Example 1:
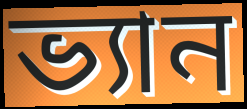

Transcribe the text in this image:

ভ্যান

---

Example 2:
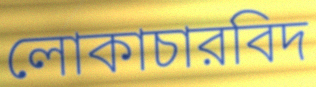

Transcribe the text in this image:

লোকাচারবিদ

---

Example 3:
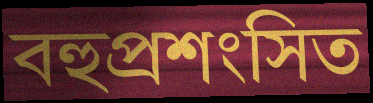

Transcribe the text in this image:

বহুপ্রশংসিত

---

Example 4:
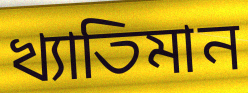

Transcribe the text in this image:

খ্যাতিমান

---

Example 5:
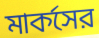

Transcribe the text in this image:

মার্কসের